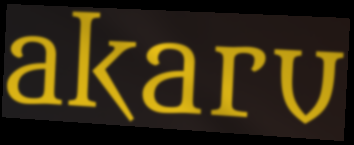
akaru